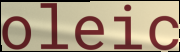
oleic